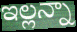
ఇల్లన్నా